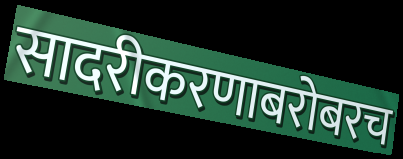
सादरीकरणाबरोबरच